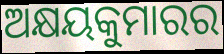
ଅକ୍ଷୟକୁମାରର